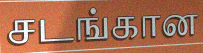
சடங்கான